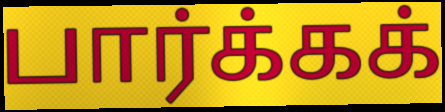
பார்க்கக்